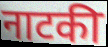
नाटकी